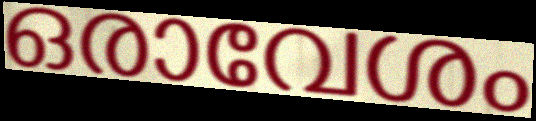
ഒരാവേശം